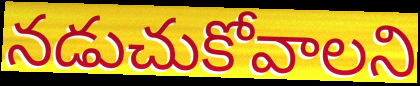
నడుచుకోవాలని